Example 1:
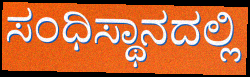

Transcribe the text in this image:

ಸಂಧಿಸ್ಥಾನದಲ್ಲಿ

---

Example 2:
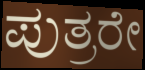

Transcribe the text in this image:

ಪುತ್ರರೇ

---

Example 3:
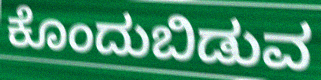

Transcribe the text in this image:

ಕೊಂದುಬಿಡುವ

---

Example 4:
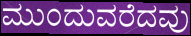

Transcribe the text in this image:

ಮುಂದುವರೆದವು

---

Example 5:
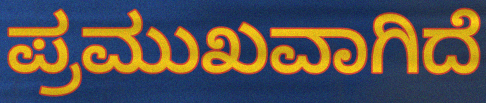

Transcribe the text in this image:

ಪ್ರಮುಖವಾಗಿದೆ